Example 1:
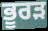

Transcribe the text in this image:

ਭੂਰੜ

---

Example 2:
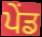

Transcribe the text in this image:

ਪੇਂਡ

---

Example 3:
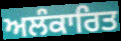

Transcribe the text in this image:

ਅਲੰਕਾਰਿਤ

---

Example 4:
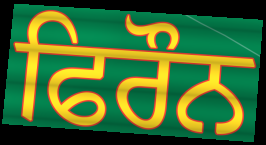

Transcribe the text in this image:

ਫਿਰੌਨ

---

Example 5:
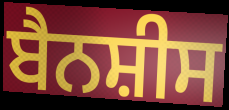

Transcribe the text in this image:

ਬੈਨਸ਼ੀਸ